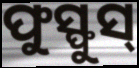
ଫୁସ୍ଫୁସ୍